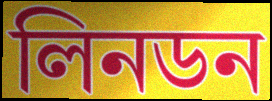
লিনডন